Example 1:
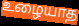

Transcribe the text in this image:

உழையாத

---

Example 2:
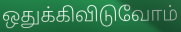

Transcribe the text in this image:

ஒதுக்கிவிடுவோம்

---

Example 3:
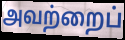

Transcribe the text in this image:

அவற்றைப்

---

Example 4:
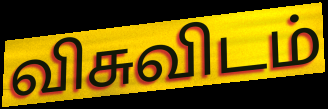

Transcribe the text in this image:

விசுவிடம்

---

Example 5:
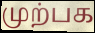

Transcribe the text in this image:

முற்பக